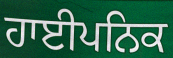
ਹਾਈਪਨਿਕ